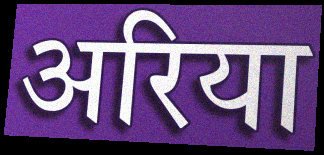
अरिया